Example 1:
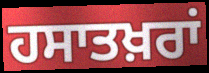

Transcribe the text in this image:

ਹਸਾਤਖ਼ਰਾਂ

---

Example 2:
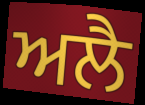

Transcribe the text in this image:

ਅਲੈ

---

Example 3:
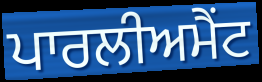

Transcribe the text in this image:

ਪਾਰਲੀਅਮੈਂਟ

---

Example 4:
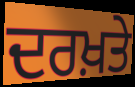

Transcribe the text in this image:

ਦਰਖ਼ਤੇ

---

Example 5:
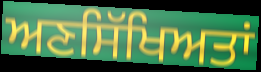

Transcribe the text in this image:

ਅਣਸਿੱਖਿਅਤਾਂ